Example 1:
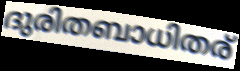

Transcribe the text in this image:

ദുരിതബാധിതര്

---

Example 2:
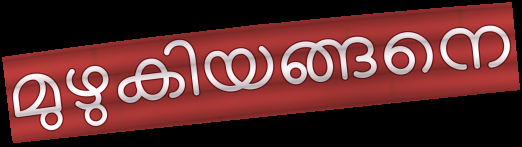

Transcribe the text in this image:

മുഴുകിയങ്ങനെ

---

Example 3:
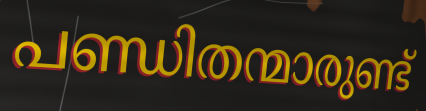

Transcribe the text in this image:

പണ്ഡിതന്മാരുണ്ട്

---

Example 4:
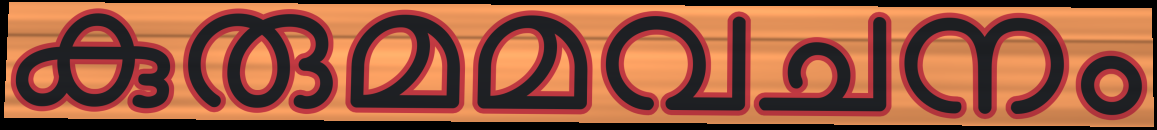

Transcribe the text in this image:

കുരുമമവചനം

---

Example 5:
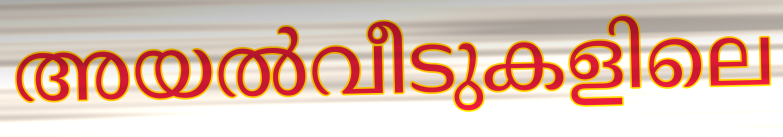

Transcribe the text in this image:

അയൽവീടുകളിലെ